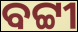
ବଟ୍ଟୀ